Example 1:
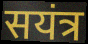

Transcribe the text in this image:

सयंत्र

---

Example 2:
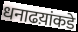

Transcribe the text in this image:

धनाढय़ांकडे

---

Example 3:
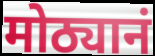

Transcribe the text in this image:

मोठ्यानं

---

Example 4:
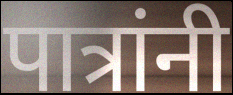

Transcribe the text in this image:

पात्रांनी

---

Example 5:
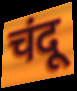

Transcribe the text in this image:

चंदू